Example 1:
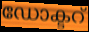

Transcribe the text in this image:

ഡോക്ടറ്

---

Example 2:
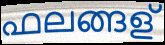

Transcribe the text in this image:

ഫലങ്ങള്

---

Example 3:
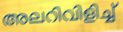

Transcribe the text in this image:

അലറിവിളിച്ച്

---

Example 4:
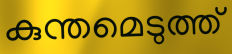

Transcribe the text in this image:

കുന്തമെടുത്ത്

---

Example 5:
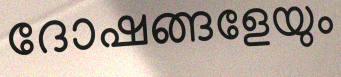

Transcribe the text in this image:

ദോഷങ്ങളേയും